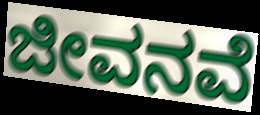
ಜೀವನವೆ